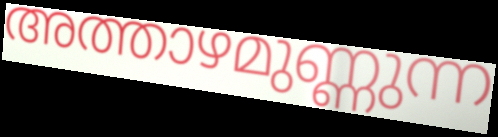
അത്താഴമുണ്ണുന്ന